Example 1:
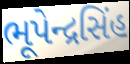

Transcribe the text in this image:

ભૂપેન્દ્રસિંહ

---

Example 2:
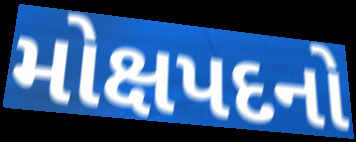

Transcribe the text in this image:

મોક્ષપદનો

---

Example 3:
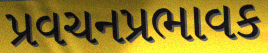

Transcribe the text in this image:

પ્રવચનપ્રભાવક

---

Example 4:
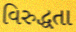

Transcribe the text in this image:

વિરુદ્ધતા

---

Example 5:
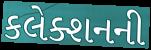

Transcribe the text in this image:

કલેક્શનની